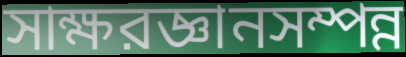
সাক্ষরজ্ঞানসম্পন্ন